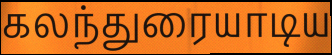
கலந்துரையாடிய